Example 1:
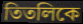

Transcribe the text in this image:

তিতলিকে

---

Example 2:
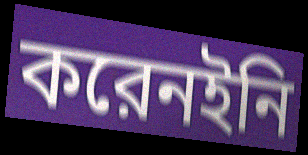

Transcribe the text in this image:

করেনইনি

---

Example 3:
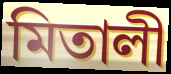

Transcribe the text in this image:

মিতালী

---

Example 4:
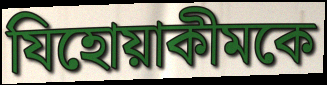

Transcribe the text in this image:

যিহোয়াকীমকে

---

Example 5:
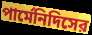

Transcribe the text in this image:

পার্মেনিদিসের